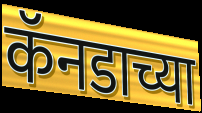
कॅनडाच्या